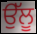
ਉੱਲੂ